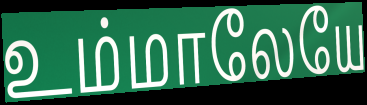
உம்மாலேயே